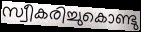
സ്വീകരിച്ചുകൊണ്ടു